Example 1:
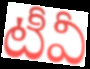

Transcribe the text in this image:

టీవీ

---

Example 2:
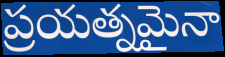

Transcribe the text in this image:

ప్రయత్నమైనా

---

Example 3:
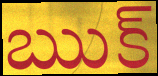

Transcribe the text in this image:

ఋక్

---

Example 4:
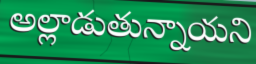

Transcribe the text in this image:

అల్లాడుతున్నాయని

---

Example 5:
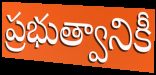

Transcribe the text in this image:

ప్రభుత్వానికీ